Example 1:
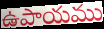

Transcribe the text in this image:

ఉపాయము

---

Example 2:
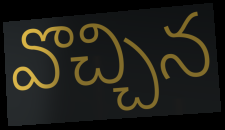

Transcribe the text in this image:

వొచ్చిన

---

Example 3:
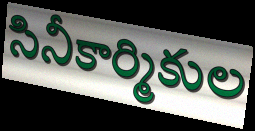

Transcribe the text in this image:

సినీకార్మికుల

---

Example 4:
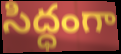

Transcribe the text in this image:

సిద్ధంగా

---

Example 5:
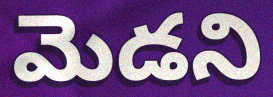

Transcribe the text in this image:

మెడని